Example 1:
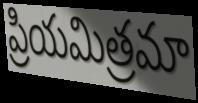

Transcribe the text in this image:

ప్రియమిత్రమా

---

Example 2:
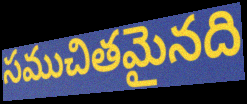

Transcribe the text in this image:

సముచితమైనది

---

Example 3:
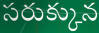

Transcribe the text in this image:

సరుక్కున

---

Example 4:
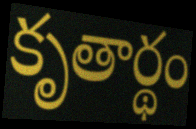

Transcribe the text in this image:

కృతార్థం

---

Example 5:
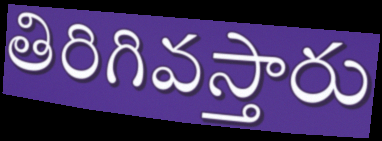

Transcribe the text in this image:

తిరిగివస్తారు